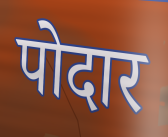
पोदार